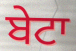
ਬੇਟਾ